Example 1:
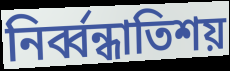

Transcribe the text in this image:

নির্ব্বন্ধাতিশয়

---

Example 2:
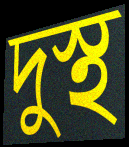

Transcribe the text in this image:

দুস্থ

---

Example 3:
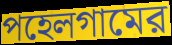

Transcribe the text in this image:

পহেলগামের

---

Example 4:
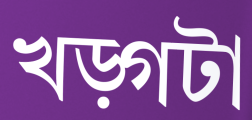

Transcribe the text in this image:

খড়্গটা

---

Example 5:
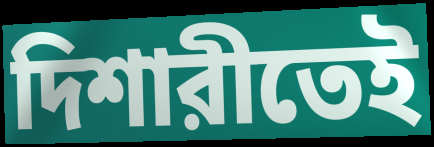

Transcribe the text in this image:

দিশারীতেই